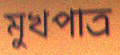
মুখপাত্র